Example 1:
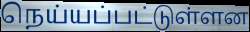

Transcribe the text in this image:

நெய்யப்பட்டுள்ளன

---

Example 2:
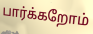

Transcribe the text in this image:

பார்க்கறோம்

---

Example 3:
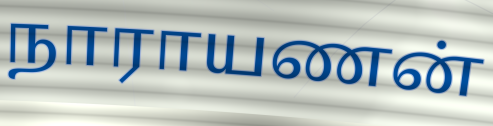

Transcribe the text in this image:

நாராயணன்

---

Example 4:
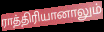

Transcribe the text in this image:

ராத்திரியானாலும்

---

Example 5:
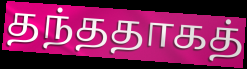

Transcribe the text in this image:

தந்ததாகத்